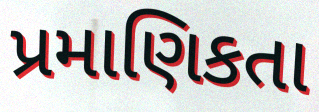
પ્રમાણિકતા